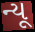
ન્યૂ